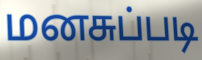
மனசுப்படி